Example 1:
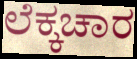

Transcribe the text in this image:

ಲೆಕ್ಕಚಾರ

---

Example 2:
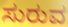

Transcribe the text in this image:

ಸುರುವ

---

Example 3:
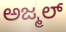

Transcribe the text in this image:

ಅಜ್ಮಲ್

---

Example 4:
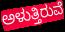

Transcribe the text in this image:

ಅಳುತ್ತಿರುವೆ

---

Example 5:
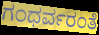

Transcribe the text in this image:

ಗಂಧರ್ವರಂತೆ